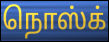
நொஸ்க்